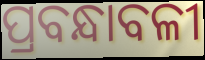
ପ୍ରବନ୍ଧାବଳୀ